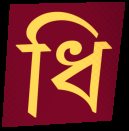
ধি